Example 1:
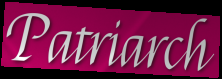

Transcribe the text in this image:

Patriarch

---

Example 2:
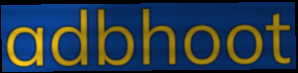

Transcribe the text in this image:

adbhoot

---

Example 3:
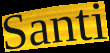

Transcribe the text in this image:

Santi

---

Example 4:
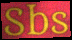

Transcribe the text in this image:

Sbs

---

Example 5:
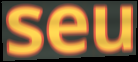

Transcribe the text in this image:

seu